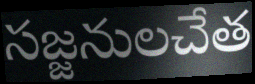
సజ్జనులచేత